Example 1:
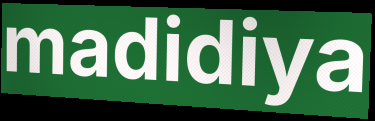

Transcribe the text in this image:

madidiya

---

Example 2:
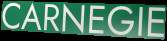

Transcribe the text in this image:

CARNEGIE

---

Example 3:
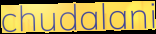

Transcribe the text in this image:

chudalani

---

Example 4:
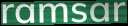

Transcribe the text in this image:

ramsar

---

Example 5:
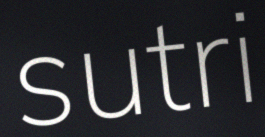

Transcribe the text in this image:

sutri